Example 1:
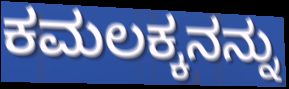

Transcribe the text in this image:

ಕಮಲಕ್ಕನನ್ನು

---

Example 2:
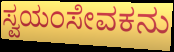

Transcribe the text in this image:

ಸ್ವಯಂಸೇವಕನು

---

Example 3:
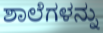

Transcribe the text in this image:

ಶಾಲೆಗಳನ್ನು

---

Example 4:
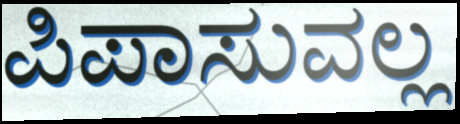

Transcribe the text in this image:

ಪಿಪಾಸುವಲ್ಲ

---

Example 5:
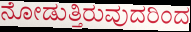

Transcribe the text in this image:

ನೋಡುತ್ತಿರುವುದರಿಂದ